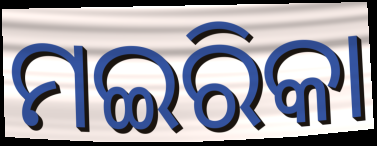
ମଇରିକା